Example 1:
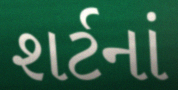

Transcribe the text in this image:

શર્ટનાં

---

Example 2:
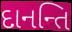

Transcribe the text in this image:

દાનન્તિ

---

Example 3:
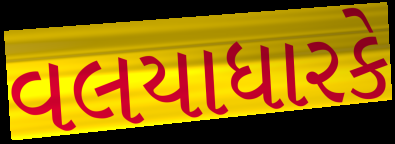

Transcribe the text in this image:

વલયાધારકે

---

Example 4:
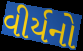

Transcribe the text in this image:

વીર્યનો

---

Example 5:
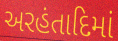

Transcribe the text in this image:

અરહંતાદિમાં